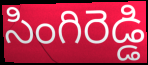
సింగిరెడ్డి